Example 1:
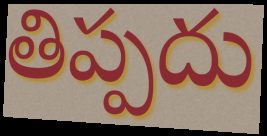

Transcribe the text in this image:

తిప్పదు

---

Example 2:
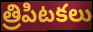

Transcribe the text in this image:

త్రిపిటకలు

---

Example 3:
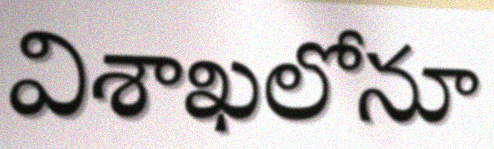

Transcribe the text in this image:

విశాఖలోనూ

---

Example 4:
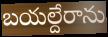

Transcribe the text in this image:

బయల్దేరాను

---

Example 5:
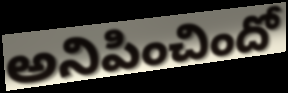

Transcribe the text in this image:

అనిపించిందో